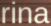
rina